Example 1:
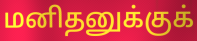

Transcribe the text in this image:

மனிதனுக்குக்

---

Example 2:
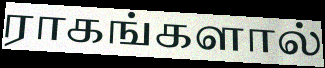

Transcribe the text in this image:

ராகங்களால்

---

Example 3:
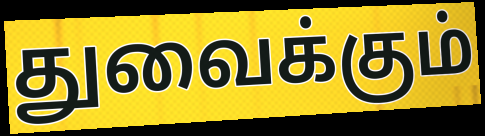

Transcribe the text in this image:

துவைக்கும்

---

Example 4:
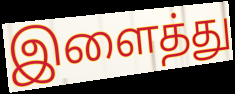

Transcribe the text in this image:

இளைத்து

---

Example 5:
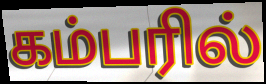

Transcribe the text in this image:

கம்பரில்